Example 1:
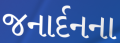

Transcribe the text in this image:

જનાર્દનના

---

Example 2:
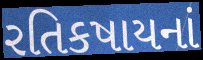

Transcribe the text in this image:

રતિકષાયનાં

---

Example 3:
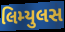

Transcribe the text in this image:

લિમ્યુલસ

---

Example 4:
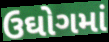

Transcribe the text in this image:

ઉઘોગમાં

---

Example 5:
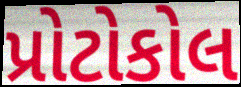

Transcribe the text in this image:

પ્રોટોકોલ